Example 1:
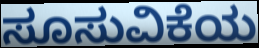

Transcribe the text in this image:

ಸೂಸುವಿಕೆಯ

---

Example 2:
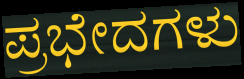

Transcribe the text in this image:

ಪ್ರಭೇದಗಳು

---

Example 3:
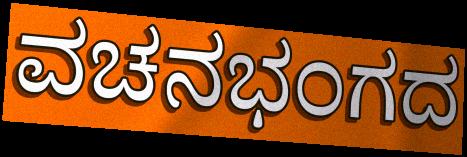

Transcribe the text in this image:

ವಚನಭಂಗದ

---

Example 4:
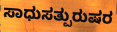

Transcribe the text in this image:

ಸಾಧುಸತ್ಪುರುಷರ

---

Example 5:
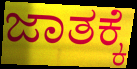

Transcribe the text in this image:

ಜಾತಕ್ಕೆ